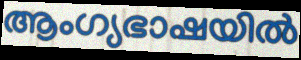
ആംഗ്യഭാഷയിൽ